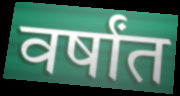
वर्षांत